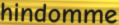
hindomme